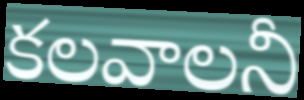
కలవాలనీ